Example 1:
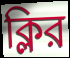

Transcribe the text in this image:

ক্লির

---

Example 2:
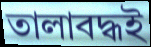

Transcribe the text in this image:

তালাবদ্ধই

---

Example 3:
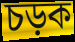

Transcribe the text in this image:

চড়ক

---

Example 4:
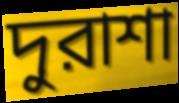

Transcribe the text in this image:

দুরাশা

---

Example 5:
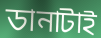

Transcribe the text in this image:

ডানাটাই